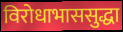
विरोधाभाससुद्धा